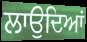
ਲਾਉਦਿਆਂ